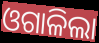
ଓଗାଳିଲା